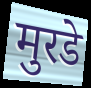
मुरडे